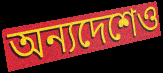
অন্যদেশেও